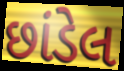
છાંડેલ